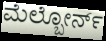
ಮೆಲ್ಬೋರ್ನ್